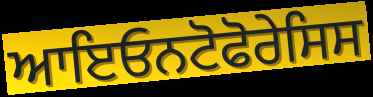
ਆਇਓਨਟੋਫੋਰੇਸਿਸ